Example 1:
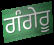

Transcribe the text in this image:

ਗੰਗੇਰੂ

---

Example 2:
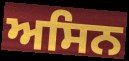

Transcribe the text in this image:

ਅਸਿਨ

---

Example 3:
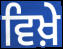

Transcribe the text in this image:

ਵਿਖ਼ੇ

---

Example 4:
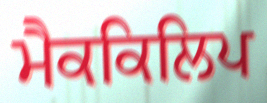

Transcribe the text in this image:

ਮੈਕਕਿਲਿਪ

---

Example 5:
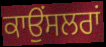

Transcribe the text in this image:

ਕਾਉਂਸਲਰਾਂ